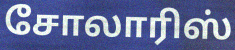
சோலாரிஸ்